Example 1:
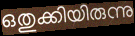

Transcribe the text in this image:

ഒതുക്കിയിരുന്നു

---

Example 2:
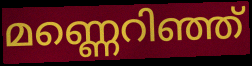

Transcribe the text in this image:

മണ്ണെറിഞ്ഞ്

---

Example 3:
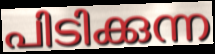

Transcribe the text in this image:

പിടിക്കുന്ന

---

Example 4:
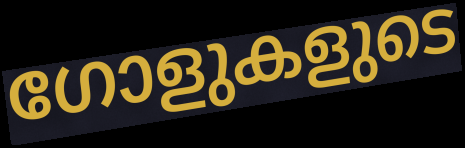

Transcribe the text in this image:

ഗോളുകളുടെ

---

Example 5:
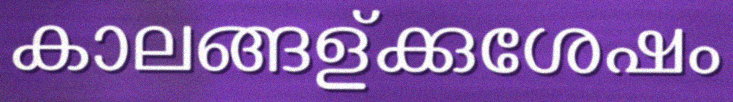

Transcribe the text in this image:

കാലങ്ങള്ക്കുശേഷം